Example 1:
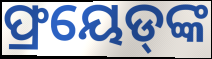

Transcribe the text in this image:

ଫ୍ରୟେଡ୍‍ଙ୍କ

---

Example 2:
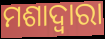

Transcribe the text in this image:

ମଶାଦ୍ୱାରା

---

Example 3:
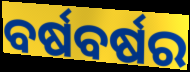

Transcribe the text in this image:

ବର୍ଷବର୍ଷର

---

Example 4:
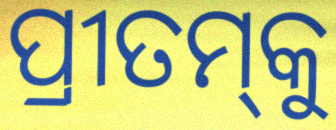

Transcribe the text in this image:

ପ୍ରୀତମ୍‌କୁ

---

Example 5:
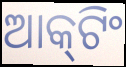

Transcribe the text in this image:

ଆକ୍‌ଟିଂ